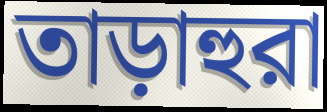
তাড়াহুরা